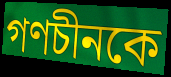
গণচীনকে